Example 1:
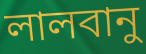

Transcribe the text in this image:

লালবানু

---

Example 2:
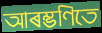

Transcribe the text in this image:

আৰম্ভণিতে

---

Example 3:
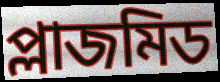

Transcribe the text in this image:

প্লাজমিড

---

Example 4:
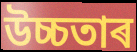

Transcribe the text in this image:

উচ্চতাৰ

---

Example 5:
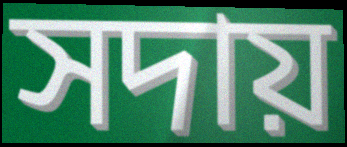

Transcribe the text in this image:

সদায়